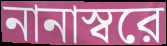
নানাস্বরে